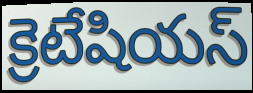
క్రెటేషియస్